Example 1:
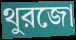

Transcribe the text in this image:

থুরজো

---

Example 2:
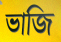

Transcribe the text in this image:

ভাজি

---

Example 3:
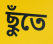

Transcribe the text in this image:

ছুঁতে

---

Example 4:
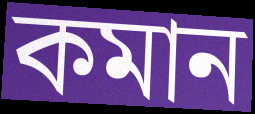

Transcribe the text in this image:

কমান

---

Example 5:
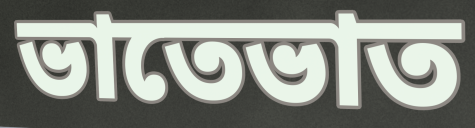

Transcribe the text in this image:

ভাতেভাত